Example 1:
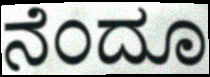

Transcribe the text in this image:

ನೆಂದೂ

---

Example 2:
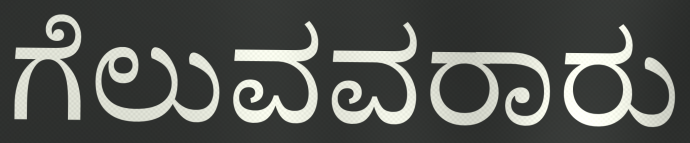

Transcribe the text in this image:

ಗೆಲುವವರಾರು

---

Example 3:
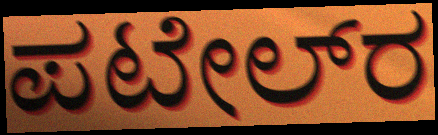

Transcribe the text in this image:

ಪಟೇಲ್‌ರ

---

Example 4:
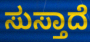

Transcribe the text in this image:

ಸುಸ್ತಾದೆ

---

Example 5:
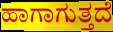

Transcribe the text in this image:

ಹಾಗಾಗುತ್ತದೆ